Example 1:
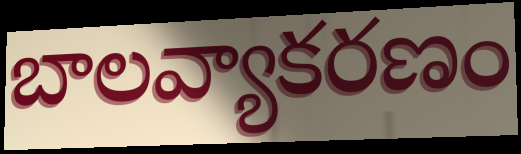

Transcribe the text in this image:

బాలవ్యాకరణం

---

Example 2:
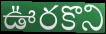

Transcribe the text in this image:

ఊరకొని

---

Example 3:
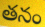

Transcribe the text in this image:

తనం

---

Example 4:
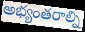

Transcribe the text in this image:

అభ్యంతరాల్ని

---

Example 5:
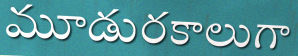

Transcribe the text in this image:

మూడురకాలుగా